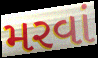
મરવાં